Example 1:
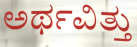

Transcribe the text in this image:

ಅರ್ಥವಿತ್ತು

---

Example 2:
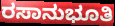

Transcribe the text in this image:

ರಸಾನುಭೂತಿ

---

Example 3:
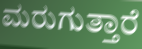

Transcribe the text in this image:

ಮರುಗುತ್ತಾರೆ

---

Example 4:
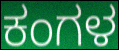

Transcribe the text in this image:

ಕಂಗಳ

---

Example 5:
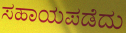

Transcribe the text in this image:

ಸಹಾಯಪಡೆದು